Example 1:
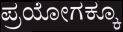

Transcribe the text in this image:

ಪ್ರಯೋಗಕ್ಕೂ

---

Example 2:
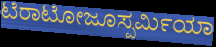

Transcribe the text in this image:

ಟೆರಾಟೋಜೂಸ್ಪರ್ಮಿಯಾ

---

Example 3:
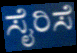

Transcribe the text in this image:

ಸೈರಿಸೆ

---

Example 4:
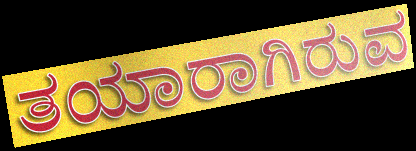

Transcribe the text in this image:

ತಯಾರಾಗಿರುವ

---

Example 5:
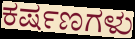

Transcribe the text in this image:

ಕರ್ಷಣಗಳು